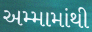
અમ્મામાંથી